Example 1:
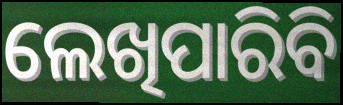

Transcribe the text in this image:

ଲେଖିପାରିବି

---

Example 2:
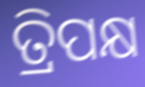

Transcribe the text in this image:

ତ୍ରିପକ୍ଷ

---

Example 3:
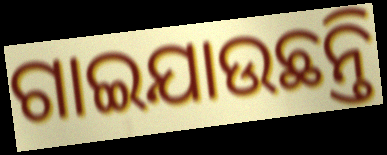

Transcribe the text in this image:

ଗାଇଯାଉଛନ୍ତି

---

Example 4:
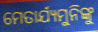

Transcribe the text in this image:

ମେତାର୍ଯ୍ୟମୁନିଙ୍କୁ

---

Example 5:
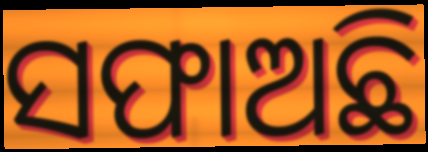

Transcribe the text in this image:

ସଫାଅଛି